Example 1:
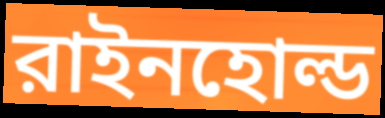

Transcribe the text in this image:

রাইনহোল্ড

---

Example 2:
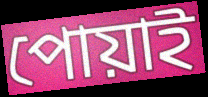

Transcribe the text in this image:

পোয়াই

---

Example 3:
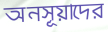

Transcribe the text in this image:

অনসূয়াদের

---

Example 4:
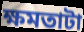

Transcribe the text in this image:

ক্ষমতাটা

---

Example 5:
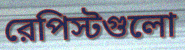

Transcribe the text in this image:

রেপিস্টগুলো